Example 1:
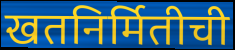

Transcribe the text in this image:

खतनिर्मितीची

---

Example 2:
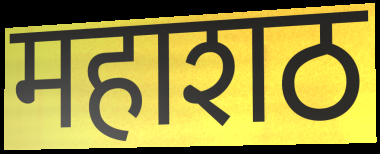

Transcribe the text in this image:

महाशठ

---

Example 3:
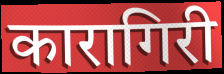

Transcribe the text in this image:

कारागिरी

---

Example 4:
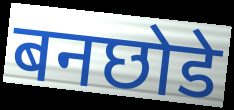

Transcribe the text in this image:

बनछोडे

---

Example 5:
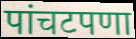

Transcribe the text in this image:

पांचटपणा